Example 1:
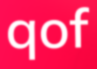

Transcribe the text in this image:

qof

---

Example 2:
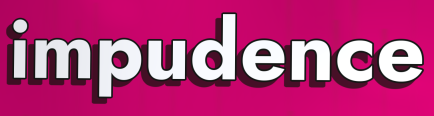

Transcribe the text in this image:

impudence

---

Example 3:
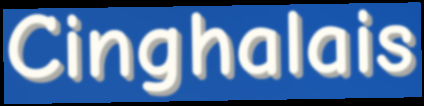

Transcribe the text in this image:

Cinghalais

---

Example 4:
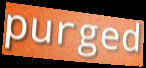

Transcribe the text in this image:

purged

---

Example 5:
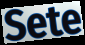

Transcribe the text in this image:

Sete